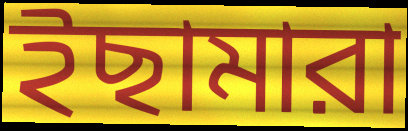
ইছামারা